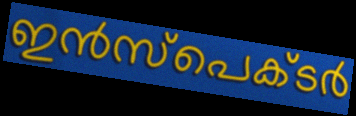
ഇൻസ്പെക്ടർ